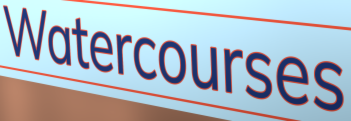
Watercourses